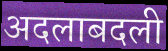
अदलाबदली